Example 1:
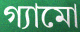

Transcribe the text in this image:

গ্যামো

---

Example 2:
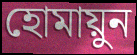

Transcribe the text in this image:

হোমায়ুন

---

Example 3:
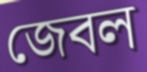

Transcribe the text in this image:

জেবল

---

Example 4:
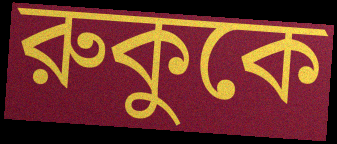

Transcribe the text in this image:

রুকুকে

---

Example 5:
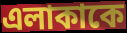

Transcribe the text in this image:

এলাকাকে